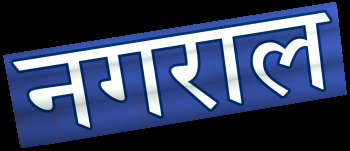
नगराल